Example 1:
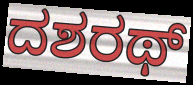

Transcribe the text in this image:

ದಶರಥ್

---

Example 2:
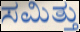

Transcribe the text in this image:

ಸಮಿತ್ತು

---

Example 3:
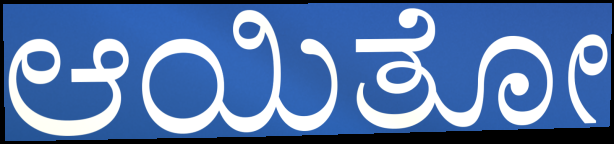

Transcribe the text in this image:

ಆಯಿತೋ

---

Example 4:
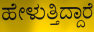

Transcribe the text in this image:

ಹೇಳುತ್ತಿದ್ದಾರೆ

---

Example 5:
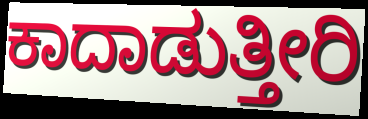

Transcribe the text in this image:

ಕಾದಾಡುತ್ತೀರಿ